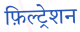
फ़िल्ट्रेशन